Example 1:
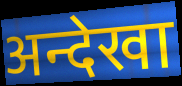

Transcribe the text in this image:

अन्देखा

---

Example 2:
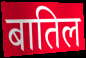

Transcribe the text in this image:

बातिल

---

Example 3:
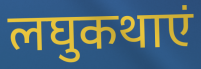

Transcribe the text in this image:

लघुकथाएं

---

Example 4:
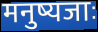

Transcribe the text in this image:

मनुष्यजाः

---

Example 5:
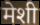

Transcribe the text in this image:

मेशी